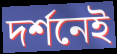
দর্শনেই